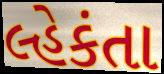
લ્હેકંતા